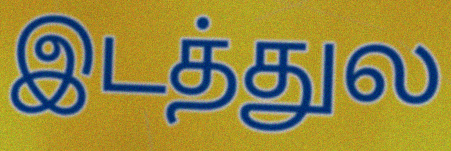
இடத்துல